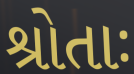
શ્રોતાઃ